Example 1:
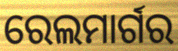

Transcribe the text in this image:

ରେଲମାର୍ଗର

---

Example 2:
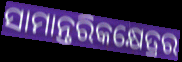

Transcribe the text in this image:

ସାମାନ୍ତରିକକ୍ଷେତ୍ରର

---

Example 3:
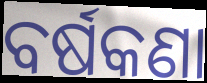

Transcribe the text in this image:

ବର୍ଷକଣା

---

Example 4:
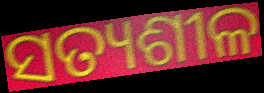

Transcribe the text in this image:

ସତ୍ୟଶୀଳ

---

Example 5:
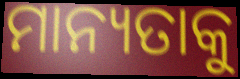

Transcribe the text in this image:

ମାନ୍ୟତାକୁ